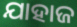
ଯାହାଜ